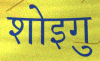
शोइगु